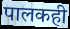
पालकही